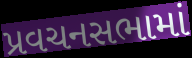
પ્રવચનસભામાં